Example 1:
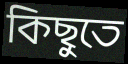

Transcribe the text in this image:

কিছুতে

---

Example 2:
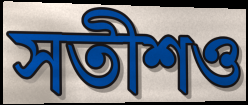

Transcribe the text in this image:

সতীশও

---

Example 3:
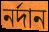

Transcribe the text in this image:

নর্দান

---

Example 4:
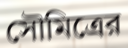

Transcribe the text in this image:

সৌমিত্রের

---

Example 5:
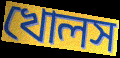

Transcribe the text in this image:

খোলস